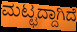
ಮಟ್ಟದ್ದಾಗಿದೆ